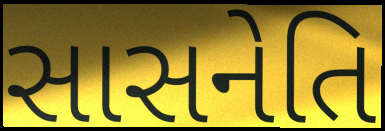
સાસનેતિ